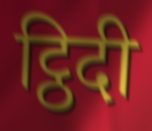
ट्ठिदी